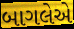
બાગલેએ